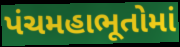
પંચમહાભૂતોમાં